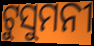
ଟୁସୁମନୀ